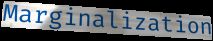
Marginalization